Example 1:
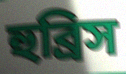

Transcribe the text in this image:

হুব্রিস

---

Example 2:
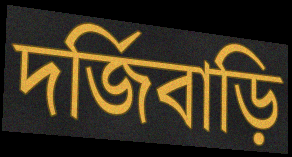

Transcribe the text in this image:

দর্জিবাড়ি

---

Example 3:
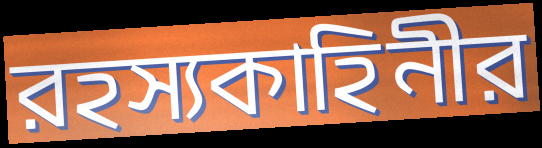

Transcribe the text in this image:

রহস্যকাহিনীর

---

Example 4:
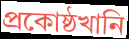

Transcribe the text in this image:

প্রকোষ্ঠখানি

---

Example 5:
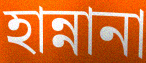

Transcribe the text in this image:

হান্নানা